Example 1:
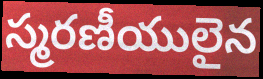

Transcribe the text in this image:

స్మరణీయులైన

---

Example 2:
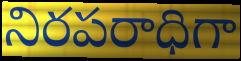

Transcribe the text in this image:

నిరపరాధిగా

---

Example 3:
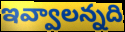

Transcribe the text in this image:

ఇవ్వాలన్నది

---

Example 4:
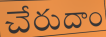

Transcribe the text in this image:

చేరుదాం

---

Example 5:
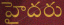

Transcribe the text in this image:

హైదరు